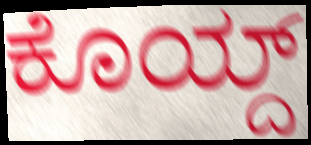
ಕೊಯ್ದ್